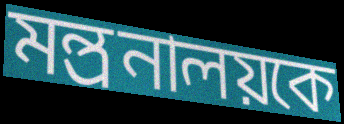
মন্ত্রনালয়কে